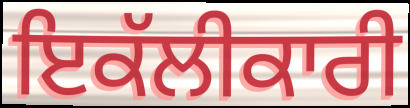
ਇਕੱਲੀਕਾਰੀ